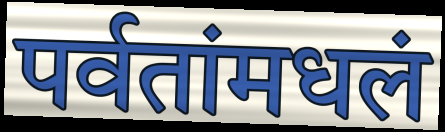
पर्वतांमधलं